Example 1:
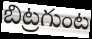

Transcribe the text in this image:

బిట్రగుంట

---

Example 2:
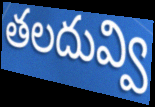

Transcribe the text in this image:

తలదువ్వి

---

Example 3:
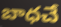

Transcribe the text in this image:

బాధచే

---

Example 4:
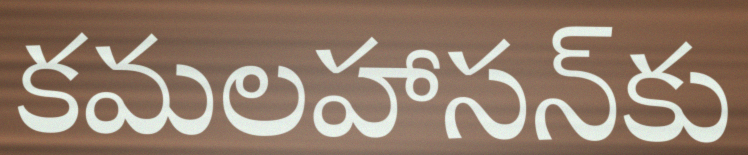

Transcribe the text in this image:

కమలహాసన్‌కు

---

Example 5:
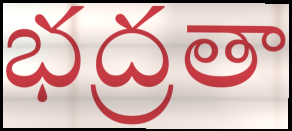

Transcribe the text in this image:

భద్రతా